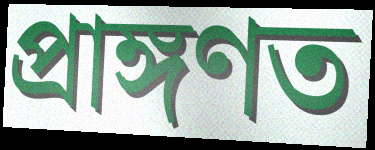
প্ৰাঙ্গণত